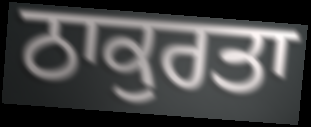
ਠਾਕੁਰਤਾ